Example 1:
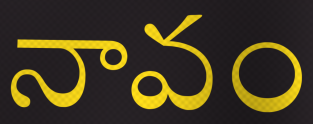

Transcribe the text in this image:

నావం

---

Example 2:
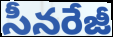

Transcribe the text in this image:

సీనరేజీ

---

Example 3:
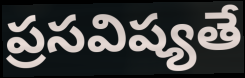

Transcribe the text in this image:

ప్రసవిష్యతే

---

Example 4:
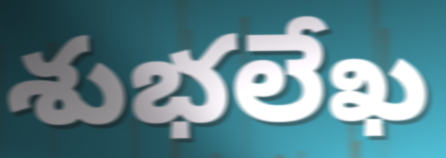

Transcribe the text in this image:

శుభలేఖ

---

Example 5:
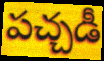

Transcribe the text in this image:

పచ్చడీ